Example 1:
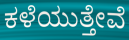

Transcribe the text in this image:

ಕಳೆಯುತ್ತೇವೆ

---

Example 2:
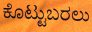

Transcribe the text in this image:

ಕೊಟ್ಟುಬರಲು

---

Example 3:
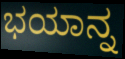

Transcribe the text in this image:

ಭಯಾನ್ನ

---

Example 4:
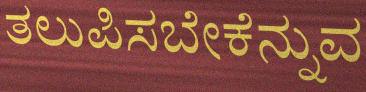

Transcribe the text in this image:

ತಲುಪಿಸಬೇಕೆನ್ನುವ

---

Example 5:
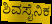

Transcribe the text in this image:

ಶಿವಸೈನಿಕ